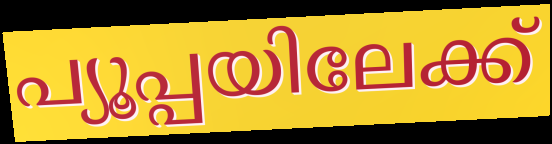
പ്യൂപ്പയിലേക്ക്